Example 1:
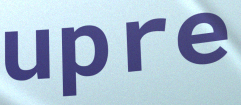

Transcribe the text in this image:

upre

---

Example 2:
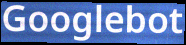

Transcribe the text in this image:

Googlebot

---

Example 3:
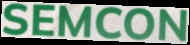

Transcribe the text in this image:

SEMCON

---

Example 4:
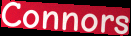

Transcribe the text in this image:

Connors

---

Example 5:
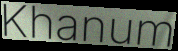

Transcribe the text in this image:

Khanum